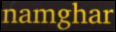
namghar